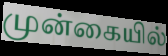
முன்கையில்